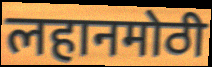
लहानमोठी